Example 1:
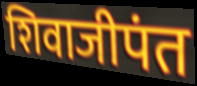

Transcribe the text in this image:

शिवाजीपंत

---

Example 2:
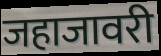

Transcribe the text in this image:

जहाजावरी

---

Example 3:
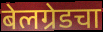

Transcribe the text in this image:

बेलग्रेडचा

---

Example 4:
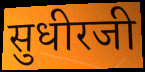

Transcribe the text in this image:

सुधीरजी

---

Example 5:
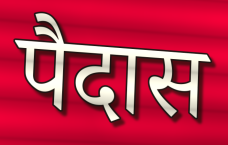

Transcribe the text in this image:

पैदास